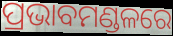
ପ୍ରଭାବମଣ୍ଡଳରେ